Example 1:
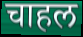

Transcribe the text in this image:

चाहल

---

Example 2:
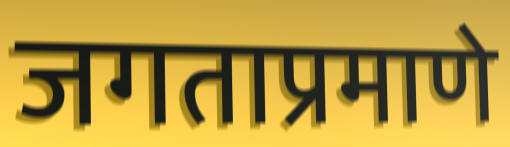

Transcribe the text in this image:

जगताप्रमाणे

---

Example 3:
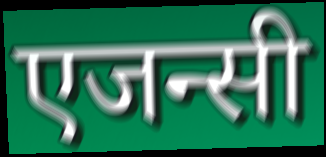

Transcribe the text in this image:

एजन्सी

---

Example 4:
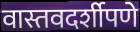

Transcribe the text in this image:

वास्तवदर्शीपणे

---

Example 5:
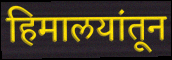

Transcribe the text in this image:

हिमालयांतून